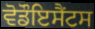
ਵੋਡੌਇਸੈਂਟਸ